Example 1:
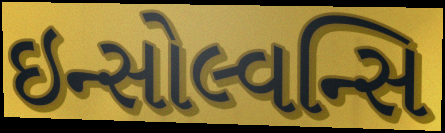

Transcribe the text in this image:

ઇન્સોલ્વન્સિ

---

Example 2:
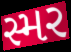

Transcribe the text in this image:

સ્મર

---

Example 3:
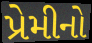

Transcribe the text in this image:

પ્રેમીનો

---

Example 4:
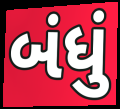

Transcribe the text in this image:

બંધું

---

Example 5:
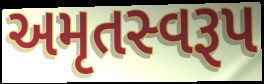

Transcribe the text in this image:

અમૃતસ્વરૂપ